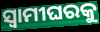
ସ୍ୱାମୀଘରକୁ